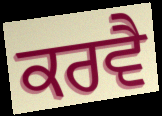
ਕਰਵੈ